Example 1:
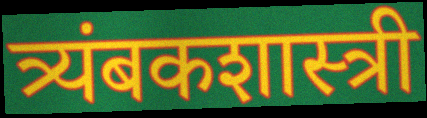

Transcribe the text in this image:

त्र्यंबकशास्त्री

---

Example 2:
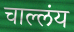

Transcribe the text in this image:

चाल्लंय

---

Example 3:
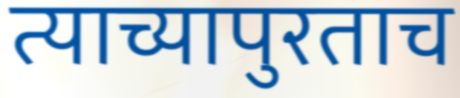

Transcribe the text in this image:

त्याच्यापुरताच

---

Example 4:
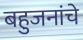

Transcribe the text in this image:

बहुजनांचे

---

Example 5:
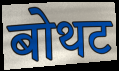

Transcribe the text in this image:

बोथट